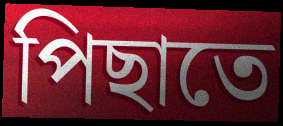
পিছাতে